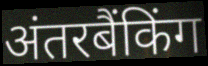
अंतरबैंकिंग